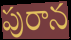
పురాన